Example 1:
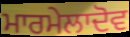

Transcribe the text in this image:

ਮਾਰਮੇਲਾਦੋਵ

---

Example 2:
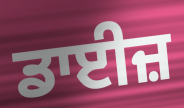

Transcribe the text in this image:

ਡਾਈਜ਼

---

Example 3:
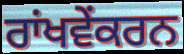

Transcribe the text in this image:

ਰਾਂਖਵੇਂਕਰਨ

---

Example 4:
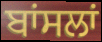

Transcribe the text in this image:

ਬਾਂਸਲਾਂ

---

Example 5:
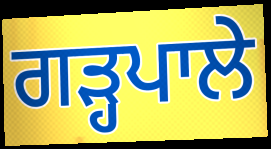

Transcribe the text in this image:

ਗੜ੍ਹਪਾਲੇ